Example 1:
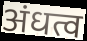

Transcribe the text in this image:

अंधत्व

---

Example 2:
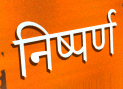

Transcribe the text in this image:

निष्पर्ण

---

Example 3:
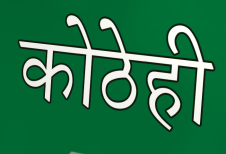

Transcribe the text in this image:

कोठेही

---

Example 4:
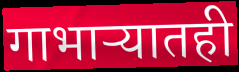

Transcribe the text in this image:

गाभाऱ्यातही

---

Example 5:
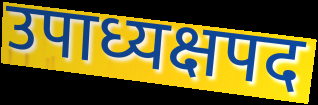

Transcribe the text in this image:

उपाध्यक्षपद